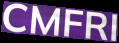
CMFRI